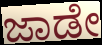
ಜಾಡೇ